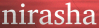
nirasha